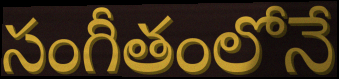
సంగీతంలోనే